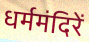
धर्ममंदिरें